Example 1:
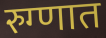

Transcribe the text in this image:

रुग्णात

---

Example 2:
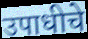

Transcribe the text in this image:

उपाधीचे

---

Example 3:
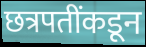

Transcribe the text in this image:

छत्रपतींकडून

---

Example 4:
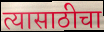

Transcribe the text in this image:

त्यासाठीचा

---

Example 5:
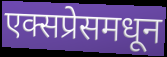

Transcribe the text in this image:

एक्सप्रेसमधून